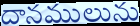
దానములును